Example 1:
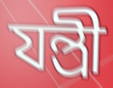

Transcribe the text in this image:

যন্ত্রী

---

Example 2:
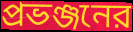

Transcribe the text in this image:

প্রভঞ্জনের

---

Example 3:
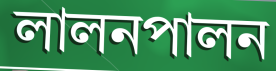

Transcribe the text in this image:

লালনপালন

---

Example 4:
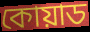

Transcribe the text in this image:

কোয়াড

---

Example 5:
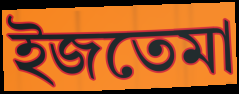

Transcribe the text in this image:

ইজতেমা